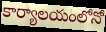
కార్యాలయంలోనో